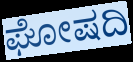
ಘೋಷದಿ